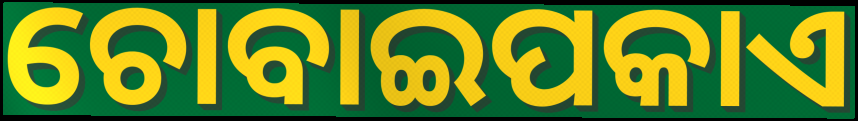
ଚୋବାଇପକାଏ